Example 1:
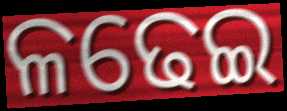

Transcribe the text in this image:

ଳଢେଇ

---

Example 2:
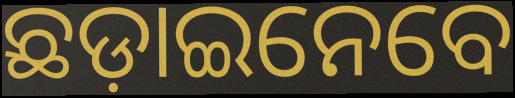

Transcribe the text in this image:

ଛଡ଼ାଇନେବେ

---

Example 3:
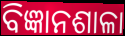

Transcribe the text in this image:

ବିଜ୍ଞାନଶାଳା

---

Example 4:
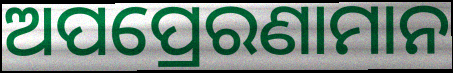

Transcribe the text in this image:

ଅପପ୍ରେରଣାମାନ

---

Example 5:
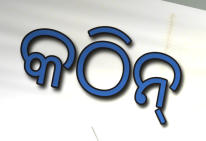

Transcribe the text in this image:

କଠିନ୍